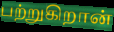
பற்றுகிறான்